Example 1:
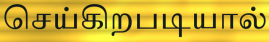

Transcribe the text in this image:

செய்கிறபடியால்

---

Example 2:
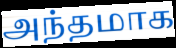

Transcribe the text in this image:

அந்தமாக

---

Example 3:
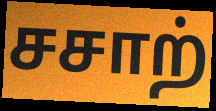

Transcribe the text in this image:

சசாற்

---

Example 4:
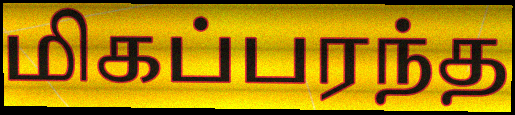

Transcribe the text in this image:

மிகப்பரந்த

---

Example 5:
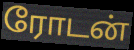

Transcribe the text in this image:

ரோடன்